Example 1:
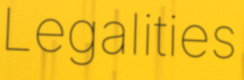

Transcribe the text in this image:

Legalities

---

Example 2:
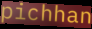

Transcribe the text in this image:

pichhan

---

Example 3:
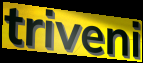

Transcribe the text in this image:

triveni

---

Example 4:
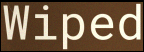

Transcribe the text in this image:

Wiped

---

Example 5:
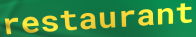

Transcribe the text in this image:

restaurant